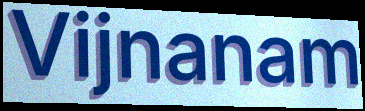
Vijnanam